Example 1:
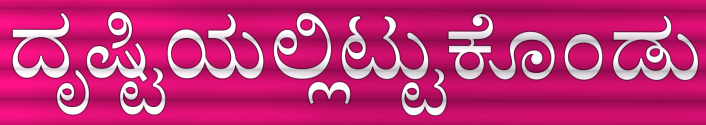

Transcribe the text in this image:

ದೃಷ್ಟಿಯಲ್ಲಿಟ್ಟುಕೊಂಡು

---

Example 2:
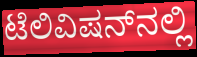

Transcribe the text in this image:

ಟೆಲಿವಿಷನ್‌ನಲ್ಲಿ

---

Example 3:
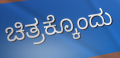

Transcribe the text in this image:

ಚಿತ್ರಕ್ಕೊಂದು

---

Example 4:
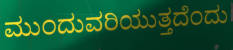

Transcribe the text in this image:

ಮುಂದುವರಿಯುತ್ತದೆಂದು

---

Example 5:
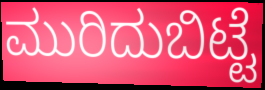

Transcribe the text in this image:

ಮುರಿದುಬಿಟ್ಟೆ